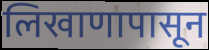
लिखाणापासून